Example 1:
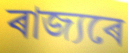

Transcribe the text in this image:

ৰাজ্যৰে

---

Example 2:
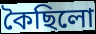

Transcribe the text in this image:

কৈছিলো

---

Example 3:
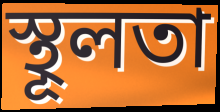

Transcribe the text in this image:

স্থূলতা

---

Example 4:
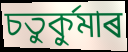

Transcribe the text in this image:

চতুৰ্কুমাৰ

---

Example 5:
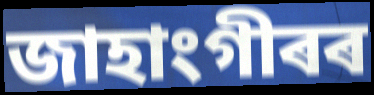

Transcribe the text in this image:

জাহাংগীৰৰ